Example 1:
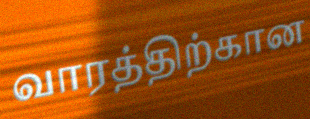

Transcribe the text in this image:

வாரத்திற்கான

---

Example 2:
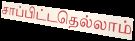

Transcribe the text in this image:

சாப்பிட்டதெல்லாம்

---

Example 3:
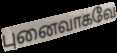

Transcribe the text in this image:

புனைவாகவே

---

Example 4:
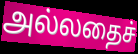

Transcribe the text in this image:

அல்லதைச்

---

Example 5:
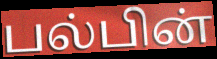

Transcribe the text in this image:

பல்பின்